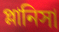
প্লানিসা